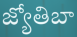
జ్యోతిబా